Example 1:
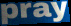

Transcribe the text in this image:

pray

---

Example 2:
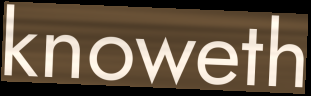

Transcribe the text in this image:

knoweth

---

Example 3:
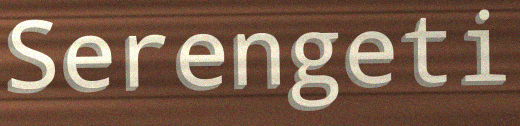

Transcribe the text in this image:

Serengeti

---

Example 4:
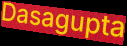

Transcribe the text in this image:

Dasagupta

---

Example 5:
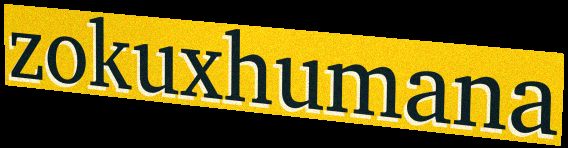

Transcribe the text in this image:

zokuxhumana